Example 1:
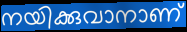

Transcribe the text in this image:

നയിക്കുവാനാണ്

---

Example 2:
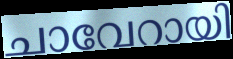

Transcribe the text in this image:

ചാവേറായി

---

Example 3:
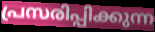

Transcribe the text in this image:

പ്രസരിപ്പിക്കുന്ന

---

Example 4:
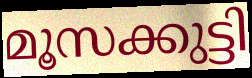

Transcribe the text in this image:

മൂസക്കുട്ടി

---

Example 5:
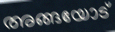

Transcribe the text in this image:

അങ്ങയോട്